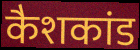
कैशकांड